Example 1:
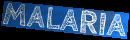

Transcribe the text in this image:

MALARIA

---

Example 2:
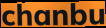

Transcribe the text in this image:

chanbu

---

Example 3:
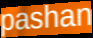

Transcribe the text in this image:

pashan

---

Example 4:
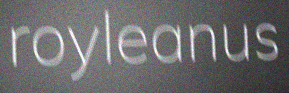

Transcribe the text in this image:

royleanus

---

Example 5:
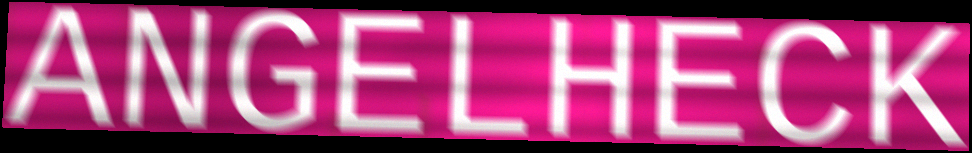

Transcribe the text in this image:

ANGELHECK